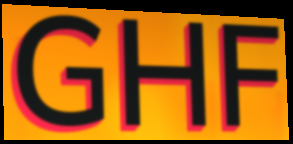
GHF